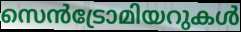
സെൻട്രോമിയറുകൾ